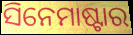
ସିନେମାଷ୍ଟାର